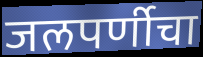
जलपर्णीचा